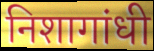
निशागांधी